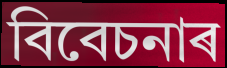
বিবেচনাৰ